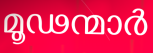
മൂഢന്മാർ